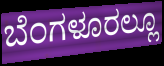
ಬೆಂಗಳೂರಲ್ಲೂ